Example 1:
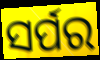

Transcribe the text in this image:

ସର୍ପର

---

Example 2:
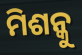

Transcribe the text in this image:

ମିଶନ୍କୁ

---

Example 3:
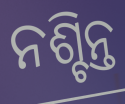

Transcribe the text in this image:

ନଶ୍ଚିନ୍ତ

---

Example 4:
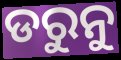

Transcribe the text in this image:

ଡରୁନୁ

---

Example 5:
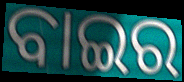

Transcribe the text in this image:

ବାଇର